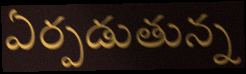
ఏర్పడుతున్న